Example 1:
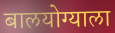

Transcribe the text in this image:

बालयोग्याला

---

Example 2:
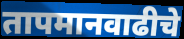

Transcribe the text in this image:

तापमानवाढीचे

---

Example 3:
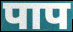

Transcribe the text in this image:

पाप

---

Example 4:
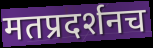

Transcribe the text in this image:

मतप्रदर्शनच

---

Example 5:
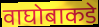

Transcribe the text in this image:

वाघोबाकडे